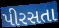
પીરસતા